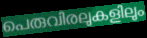
പെരുവിരലുകളിലും